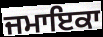
ਜਮਾਇਕਾ